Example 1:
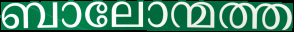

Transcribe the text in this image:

ബാലോന്മത്ത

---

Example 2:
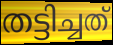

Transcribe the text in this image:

തട്ടിച്ചത്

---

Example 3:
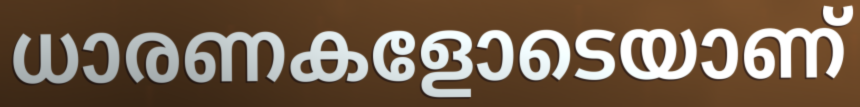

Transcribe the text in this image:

ധാരണകളോടെയാണ്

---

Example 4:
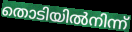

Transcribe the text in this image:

തൊടിയിൽനിന്ന്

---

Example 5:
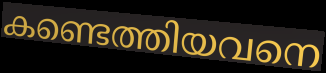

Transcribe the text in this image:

കണ്ടെത്തിയവനെ